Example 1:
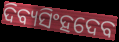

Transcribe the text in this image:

ଦିବ୍ୟସିଂହଦେବ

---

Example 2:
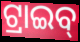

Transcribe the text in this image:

ଟ୍ରାଇବ୍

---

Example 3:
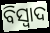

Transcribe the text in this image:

ବିସ୍ୱାଦ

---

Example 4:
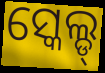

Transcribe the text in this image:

ସ୍କେଲ୍ଡ୍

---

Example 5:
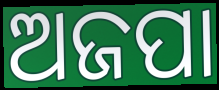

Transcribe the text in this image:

ଅଜପା